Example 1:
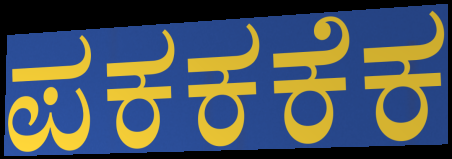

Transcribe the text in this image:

ಪಕಕಕೆಕ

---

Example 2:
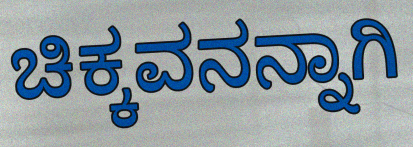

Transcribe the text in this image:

ಚಿಕ್ಕವನನ್ನಾಗಿ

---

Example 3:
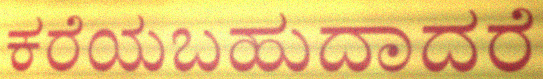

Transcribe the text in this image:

ಕರೆಯಬಹುದಾದರೆ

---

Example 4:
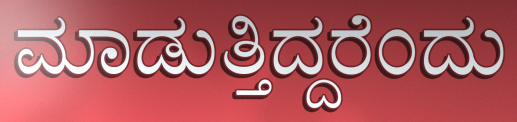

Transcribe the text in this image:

ಮಾಡುತ್ತಿದ್ದರೆಂದು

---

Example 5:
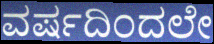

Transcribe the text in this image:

ವರ್ಷದಿಂದಲೇ